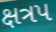
ક્ષત્રપ